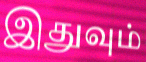
இதுவும்